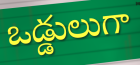
ఒడ్డులుగా